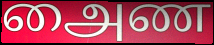
அைண